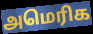
அமெரிக